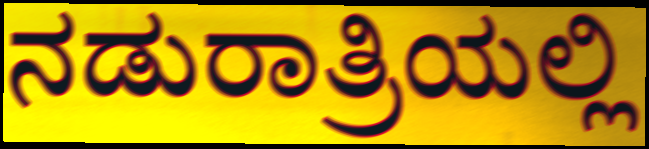
ನಡುರಾತ್ರಿಯಲ್ಲಿ